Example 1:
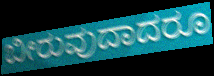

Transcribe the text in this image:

ಬೀರುವುದಾದರೂ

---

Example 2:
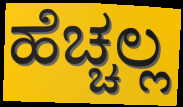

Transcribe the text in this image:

ಹೆಚ್ಚಲ್ಲ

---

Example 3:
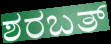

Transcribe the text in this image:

ಶರಬತ್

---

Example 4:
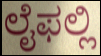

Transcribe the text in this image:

ಲೈಫಲ್ಲಿ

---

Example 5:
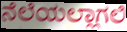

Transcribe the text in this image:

ನೆಲೆಯಲ್ಲಾಗಲಿ